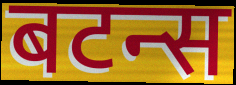
बटन्स